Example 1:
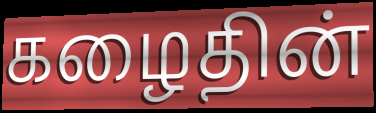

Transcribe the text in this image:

கழைதின்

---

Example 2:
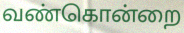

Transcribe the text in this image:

வண்கொன்றை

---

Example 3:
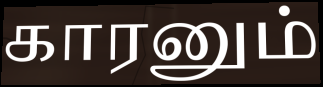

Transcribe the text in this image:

காரனும்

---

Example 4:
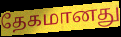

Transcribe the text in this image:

தேகமானது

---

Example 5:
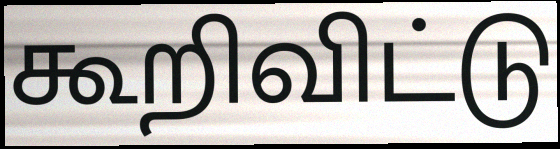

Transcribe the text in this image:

கூறிவிட்டு